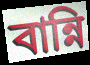
বান্নি